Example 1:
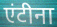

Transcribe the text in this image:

एंटीना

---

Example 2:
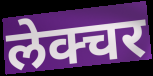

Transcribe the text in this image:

लेक्चर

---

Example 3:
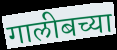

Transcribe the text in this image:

गालीबच्या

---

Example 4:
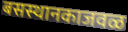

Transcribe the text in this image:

बसस्थानकाजवळ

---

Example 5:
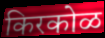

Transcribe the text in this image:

किरकोळ